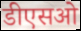
डीएसओ